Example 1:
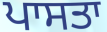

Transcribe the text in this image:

ਪਾਸਤਾ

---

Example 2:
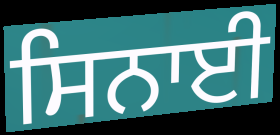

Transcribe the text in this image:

ਸਿਨਾਈ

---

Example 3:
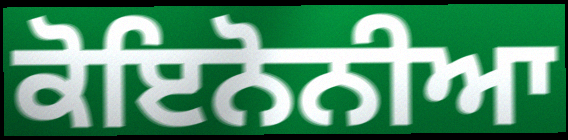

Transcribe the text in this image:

ਕੋਇਨੋਨੀਆ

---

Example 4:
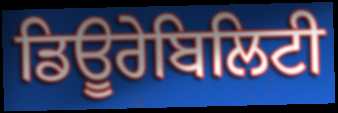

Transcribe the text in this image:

ਡਿਊਰੇਬਿਲਿਟੀ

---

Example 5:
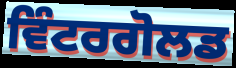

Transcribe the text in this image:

ਵਿੰਟਰਗੋਲਡ